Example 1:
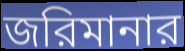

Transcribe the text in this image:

জরিমানার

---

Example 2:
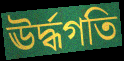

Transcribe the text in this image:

ঊর্দ্ধগতি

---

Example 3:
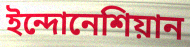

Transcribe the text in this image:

ইন্দোনেশিয়ান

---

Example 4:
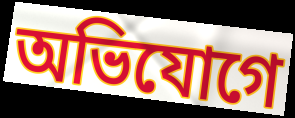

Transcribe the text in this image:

অভিযোগে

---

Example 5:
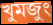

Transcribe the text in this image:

খুমজুং